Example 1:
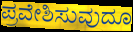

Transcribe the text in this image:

ಪ್ರವೇಶಿಸುವುದೂ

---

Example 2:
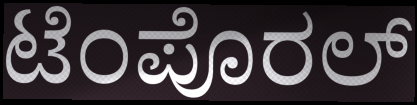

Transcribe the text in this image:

ಟೆಂಪೊರಲ್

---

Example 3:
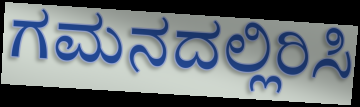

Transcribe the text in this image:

ಗಮನದಲ್ಲಿರಿಸಿ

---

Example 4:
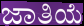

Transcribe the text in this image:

ಜಾತಿಯೆ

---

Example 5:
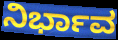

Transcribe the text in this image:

ನಿರ್ಭಾವ